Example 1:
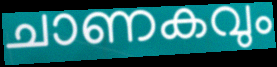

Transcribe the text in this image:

ചാണകവും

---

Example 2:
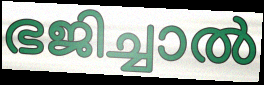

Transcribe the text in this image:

ഭജിച്ചാൽ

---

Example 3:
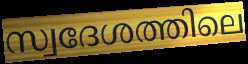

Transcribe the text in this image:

സ്വദേശത്തിലെ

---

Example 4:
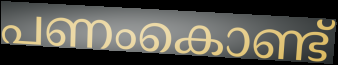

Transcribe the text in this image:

പണംകൊണ്ട്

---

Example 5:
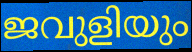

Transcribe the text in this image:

ജവുളിയും